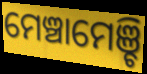
ମେଞ୍ଚାମେଞ୍ଚି